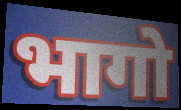
भागो